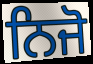
ਨਿਜੋ